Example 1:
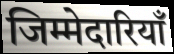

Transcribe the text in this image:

जिम्मेदारियाँ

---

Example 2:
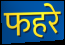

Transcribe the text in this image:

फहरे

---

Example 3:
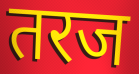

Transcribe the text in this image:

तरज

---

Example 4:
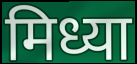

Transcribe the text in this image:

मिध्या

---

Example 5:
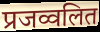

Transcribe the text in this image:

प्रजव्वलित